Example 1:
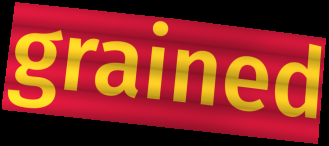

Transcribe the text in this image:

grained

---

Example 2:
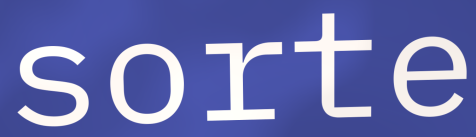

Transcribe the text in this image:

sorte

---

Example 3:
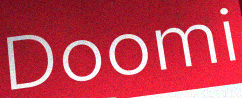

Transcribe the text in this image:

Doomi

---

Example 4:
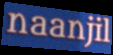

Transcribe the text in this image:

naanjil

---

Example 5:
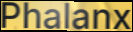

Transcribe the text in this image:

Phalanx